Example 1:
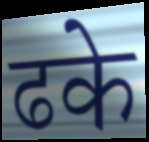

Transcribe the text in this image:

ढके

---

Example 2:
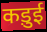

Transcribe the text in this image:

कड़ुई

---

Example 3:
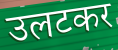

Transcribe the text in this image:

उलटकर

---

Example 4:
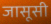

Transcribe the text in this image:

जासूसी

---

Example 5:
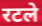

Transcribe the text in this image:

रटले